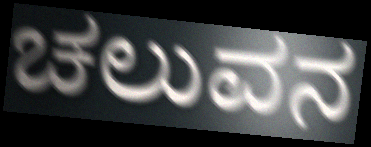
ಚಲುವನ